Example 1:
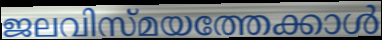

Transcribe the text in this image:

ജലവിസ്മയത്തേക്കാൾ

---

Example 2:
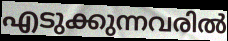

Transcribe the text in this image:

എടുക്കുന്നവരിൽ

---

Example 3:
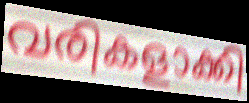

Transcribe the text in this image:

വരികളാക്കി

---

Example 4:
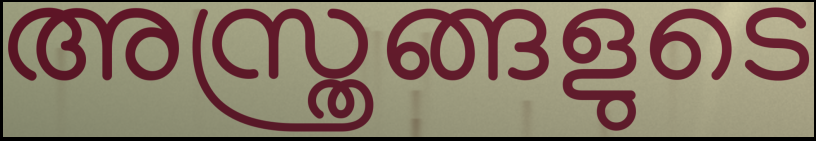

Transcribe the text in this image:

അസ്ത്രങ്ങളുടെ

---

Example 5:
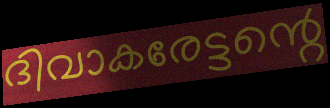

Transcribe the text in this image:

ദിവാകരേട്ടന്റെ